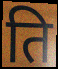
ति